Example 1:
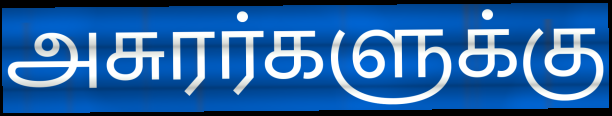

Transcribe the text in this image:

அசுரர்களுக்கு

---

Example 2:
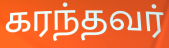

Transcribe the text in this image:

கரந்தவர்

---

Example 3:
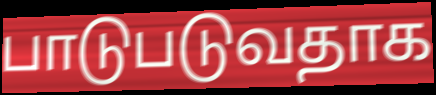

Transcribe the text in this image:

பாடுபடுவதாக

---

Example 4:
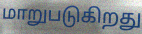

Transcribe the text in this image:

மாறுபடுகிறது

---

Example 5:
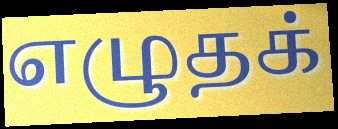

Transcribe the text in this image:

எழுதக்